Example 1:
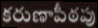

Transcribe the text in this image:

కరుణాపీఠపు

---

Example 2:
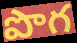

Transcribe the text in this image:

పొగ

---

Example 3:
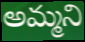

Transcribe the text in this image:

అమ్మని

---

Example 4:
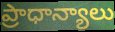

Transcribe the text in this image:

ప్రాధాన్యాలు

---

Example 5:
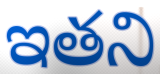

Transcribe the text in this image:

ఇతని